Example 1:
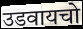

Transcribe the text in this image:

उडवायचो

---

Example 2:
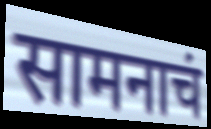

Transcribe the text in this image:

सामनाचं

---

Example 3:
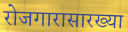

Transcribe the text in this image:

रोजगारासारख्या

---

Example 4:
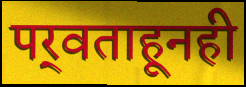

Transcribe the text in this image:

पर्वताहूनही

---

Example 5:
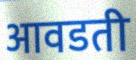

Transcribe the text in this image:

आवडती